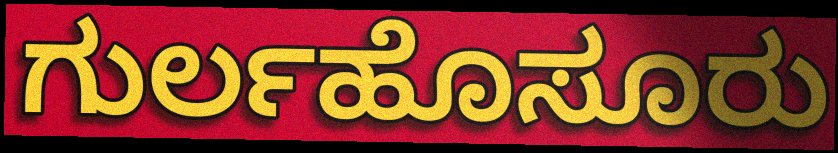
ಗುರ್ಲಹೊಸೂರು